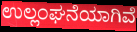
ಉಲ್ಲಂಘನೆಯಾಗಿವೆ